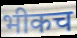
भीकच